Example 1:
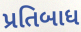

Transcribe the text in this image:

પ્રતિબાધ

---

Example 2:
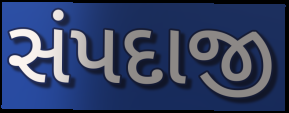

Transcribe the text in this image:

સંપદાજી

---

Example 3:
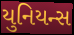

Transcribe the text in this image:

યુનિયન્સ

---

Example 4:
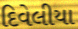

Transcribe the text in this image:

દિવેલીયા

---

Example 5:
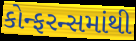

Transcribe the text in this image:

કોન્ફરન્સમાંથી